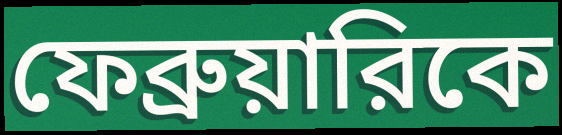
ফেব্রুয়ারিকে